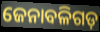
ଜେନାବଳିଗଡ଼